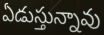
ఏడుస్తున్నావు